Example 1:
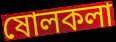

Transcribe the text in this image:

ষোলকলা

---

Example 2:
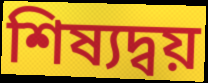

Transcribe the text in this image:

শিষ্যদ্বয়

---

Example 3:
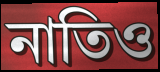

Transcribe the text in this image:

নাতিও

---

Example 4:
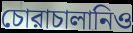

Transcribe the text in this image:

চোরাচালানিও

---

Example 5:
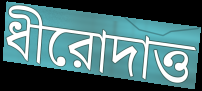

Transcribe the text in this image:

ধীরোদাত্ত